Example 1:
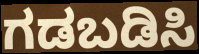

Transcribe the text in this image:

ಗಡಬಡಿಸಿ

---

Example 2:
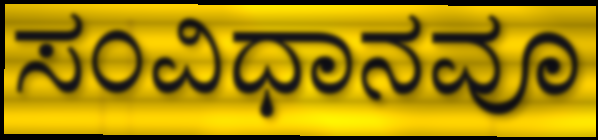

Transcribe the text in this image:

ಸಂವಿಧಾನವೂ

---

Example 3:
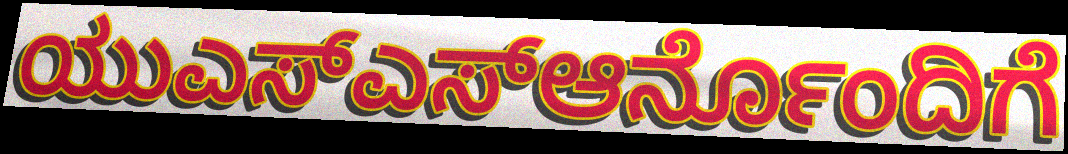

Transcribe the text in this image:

ಯುಎಸ್ಎಸ್ಆರ್ನೊಂದಿಗೆ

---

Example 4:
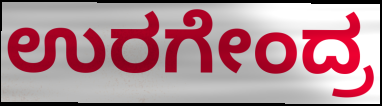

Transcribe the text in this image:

ಉರಗೇಂದ್ರ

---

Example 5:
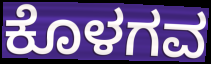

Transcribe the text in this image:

ಕೊಳಗವ